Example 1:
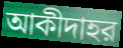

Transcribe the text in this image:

আকীদাহর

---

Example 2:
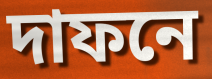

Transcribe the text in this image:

দাফনে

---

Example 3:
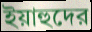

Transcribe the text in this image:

ইয়াহুদের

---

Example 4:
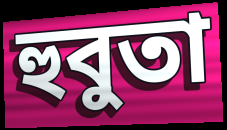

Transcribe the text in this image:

হুবুতা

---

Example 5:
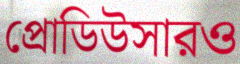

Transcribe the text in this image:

প্রোডিউসারও